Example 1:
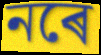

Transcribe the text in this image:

নৰে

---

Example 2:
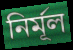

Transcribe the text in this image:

নিৰ্মূল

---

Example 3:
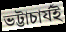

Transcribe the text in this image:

ভট্টাচাৰ্যই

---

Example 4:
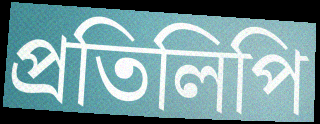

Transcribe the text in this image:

প্ৰতিলিপি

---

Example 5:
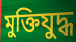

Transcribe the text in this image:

মুক্তিযুদ্ধ